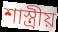
শাস্ত্ৰীয়